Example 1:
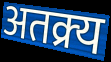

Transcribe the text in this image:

अतक्र्य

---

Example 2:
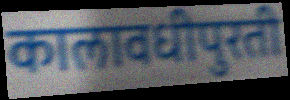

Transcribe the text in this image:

कालावधीपुरती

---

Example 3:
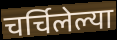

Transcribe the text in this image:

चर्चिलेल्या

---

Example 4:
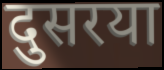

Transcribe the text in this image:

दुसरया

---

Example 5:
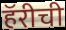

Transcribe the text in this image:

हॅरीची